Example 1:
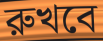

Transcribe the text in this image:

রুখবে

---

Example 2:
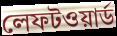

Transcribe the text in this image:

লেফটওয়ার্ড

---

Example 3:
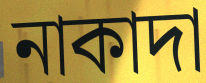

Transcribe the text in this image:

নাকাদা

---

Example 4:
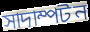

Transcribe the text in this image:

সাদাম্পটন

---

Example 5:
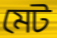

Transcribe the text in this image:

মেট